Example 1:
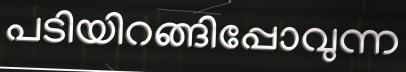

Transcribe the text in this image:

പടിയിറങ്ങിപ്പോവുന്ന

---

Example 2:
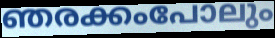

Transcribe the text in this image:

ഞരക്കംപോലും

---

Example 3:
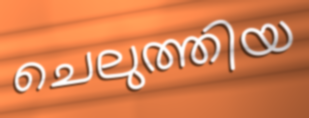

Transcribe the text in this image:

ചെലുത്തിയ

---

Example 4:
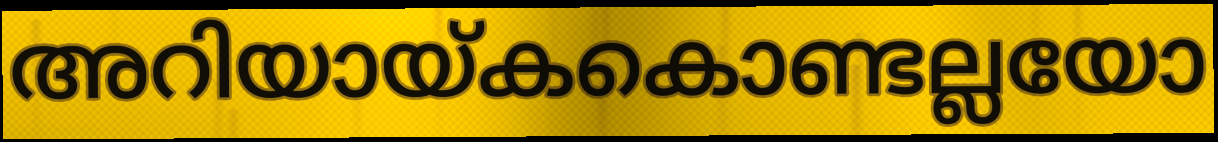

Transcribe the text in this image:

അറിയായ്കകൊണ്ടല്ലയോ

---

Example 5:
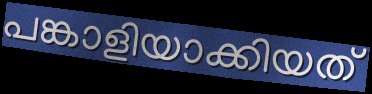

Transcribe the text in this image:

പങ്കാളിയാക്കിയത്